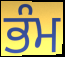
ਭੰਮ